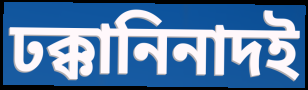
ঢক্কানিনাদই